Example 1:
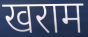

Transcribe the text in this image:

खराम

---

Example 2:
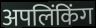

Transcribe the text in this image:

अपलिंकिंग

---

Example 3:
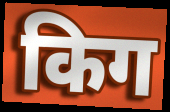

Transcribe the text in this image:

किग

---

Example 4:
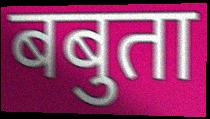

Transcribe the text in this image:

बबुता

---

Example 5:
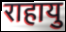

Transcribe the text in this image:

राहायु